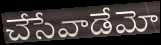
చేసేవాడేమో